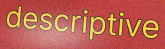
descriptive